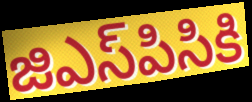
జిఎస్‌పిసికి